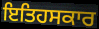
ਇਤਿਹਸਕਾਰ